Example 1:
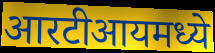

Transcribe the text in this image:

आरटीआयमध्ये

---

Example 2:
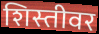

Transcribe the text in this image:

शिस्तीवर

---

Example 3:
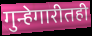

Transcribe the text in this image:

गुन्हेगारीतही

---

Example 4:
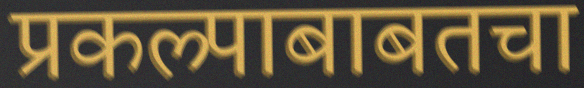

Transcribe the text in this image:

प्रकल्पाबाबतचा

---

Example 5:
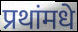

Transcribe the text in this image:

प्रथांमधे